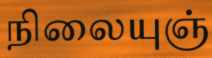
நிலையுஞ்